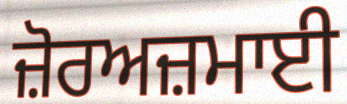
ਜ਼ੋਰਅਜ਼ਮਾਈ